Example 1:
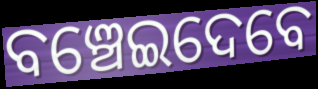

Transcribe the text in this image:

ବଞ୍ଚେଇଦେବେ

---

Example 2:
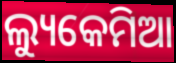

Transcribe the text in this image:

ଲ୍ୟୁକେମିଆ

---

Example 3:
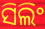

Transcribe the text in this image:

ସିଲିଂ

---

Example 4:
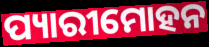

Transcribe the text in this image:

ପ୍ୟାରୀମୋହନ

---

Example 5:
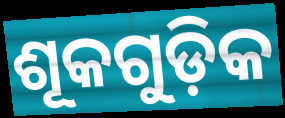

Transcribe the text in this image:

ଶୂକଗୁଡ଼ିକ